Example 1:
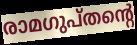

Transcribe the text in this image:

രാമഗുപ്തന്റെ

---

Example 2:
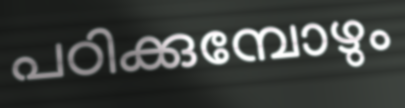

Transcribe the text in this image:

പഠിക്കുമ്പോഴും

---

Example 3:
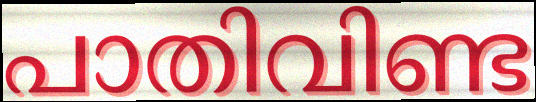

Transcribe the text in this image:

പാതിവിണ്ട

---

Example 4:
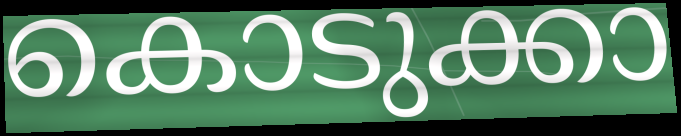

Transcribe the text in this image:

കൊടുക്കാ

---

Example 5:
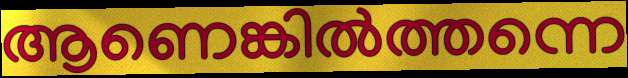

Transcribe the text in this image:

ആണെങ്കിൽത്തന്നെ